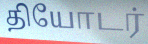
தியோடர்